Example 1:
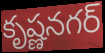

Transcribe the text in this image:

కృష్ణనగర్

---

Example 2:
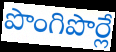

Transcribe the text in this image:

పొంగిపొర్లే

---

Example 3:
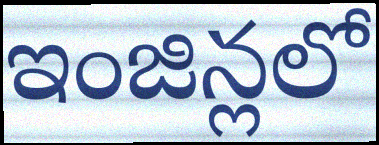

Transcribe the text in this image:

ఇంజిన్లలో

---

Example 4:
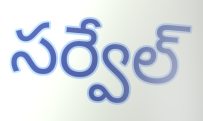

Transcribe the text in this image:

సర్వేల్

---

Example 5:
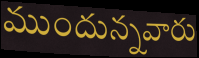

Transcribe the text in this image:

ముందున్నవారు